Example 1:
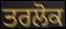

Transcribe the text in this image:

ਤਰਲੋਕ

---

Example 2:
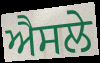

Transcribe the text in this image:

ਐਸਲੇ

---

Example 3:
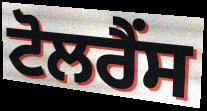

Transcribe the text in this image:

ਟੋਲਰੈਂਸ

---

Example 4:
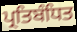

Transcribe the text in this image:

ਪ੍ਰਤਿਬੰਧਿਤ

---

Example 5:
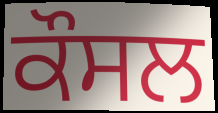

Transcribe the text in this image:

ਕੌਸਲ